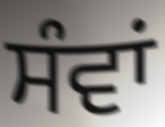
ਸੰਵਾਂ